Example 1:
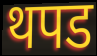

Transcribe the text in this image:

थपड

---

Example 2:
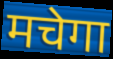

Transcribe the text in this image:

मचेगा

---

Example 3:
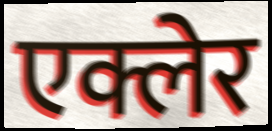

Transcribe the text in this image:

एक्लेर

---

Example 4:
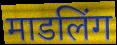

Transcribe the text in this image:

माडलिंग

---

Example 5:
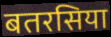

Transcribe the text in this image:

बतरसिया